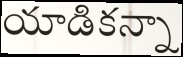
యాడికన్నా